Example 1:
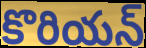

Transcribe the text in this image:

కొరియన్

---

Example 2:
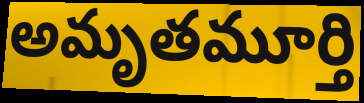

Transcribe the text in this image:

అమృతమూర్తి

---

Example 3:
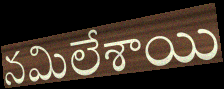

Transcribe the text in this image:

నమిలేశాయి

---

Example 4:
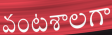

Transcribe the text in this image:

వంటశాలగా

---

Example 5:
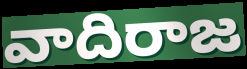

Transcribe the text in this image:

వాదిరాజ